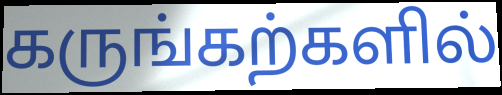
கருங்கற்களில்